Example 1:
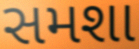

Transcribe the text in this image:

સમશા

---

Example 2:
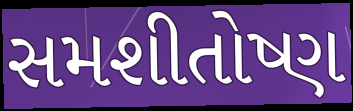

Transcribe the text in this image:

સમશીતોષ્ણ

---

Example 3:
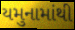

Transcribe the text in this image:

યમુનામાંથી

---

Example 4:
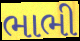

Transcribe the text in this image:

ભાભી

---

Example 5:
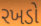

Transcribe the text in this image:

રખડો